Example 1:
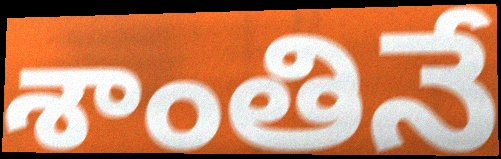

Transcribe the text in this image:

శాంతినే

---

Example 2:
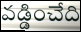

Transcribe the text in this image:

వడ్డించేది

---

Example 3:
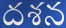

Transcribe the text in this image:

దశన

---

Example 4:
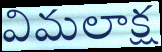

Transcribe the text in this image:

విమలాక్ష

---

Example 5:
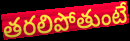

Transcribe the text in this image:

తరలిపోతుంటే